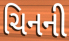
ચિનની